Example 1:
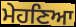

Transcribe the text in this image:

ਮੇਹਣਿਆ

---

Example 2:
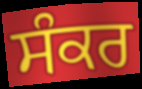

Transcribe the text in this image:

ਸੰਕਰ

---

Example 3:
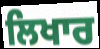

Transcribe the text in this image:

ਲਿਖਾਰ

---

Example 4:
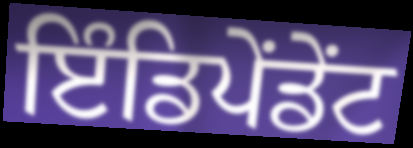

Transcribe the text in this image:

ਇੰਡਿਪੇਂਡੇਂਟ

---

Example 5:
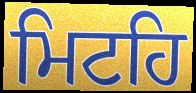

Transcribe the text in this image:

ਮਿਟਹਿ